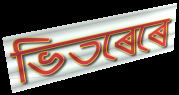
ভিতৰেৰে